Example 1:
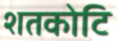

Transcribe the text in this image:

शतकोटि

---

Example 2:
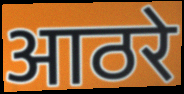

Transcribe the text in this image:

आठरे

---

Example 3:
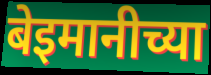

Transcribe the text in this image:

बेइमानीच्या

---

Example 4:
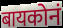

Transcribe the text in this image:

बायकोनं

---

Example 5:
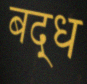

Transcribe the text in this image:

बद्ध